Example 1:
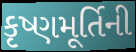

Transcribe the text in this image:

કૃષ્ણમૂર્તિની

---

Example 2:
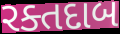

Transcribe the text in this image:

રક્તદાબ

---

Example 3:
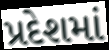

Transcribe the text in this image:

પ્રદેશમાં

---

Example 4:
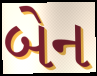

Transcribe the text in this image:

બેન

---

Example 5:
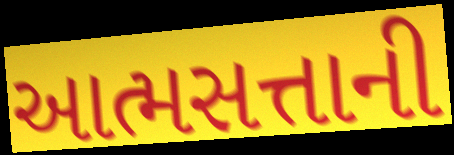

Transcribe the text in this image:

આત્મસત્તાની